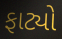
ફાટ્યો